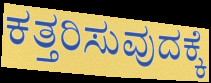
ಕತ್ತರಿಸುವುದಕ್ಕೆ